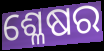
ଶ୍ଳେଷର